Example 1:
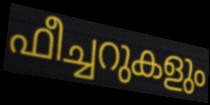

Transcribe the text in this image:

ഫീച്ചറുകളും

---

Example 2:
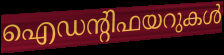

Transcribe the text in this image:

ഐഡന്റിഫയറുകൾ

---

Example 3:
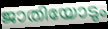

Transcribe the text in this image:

ജാതിയോടും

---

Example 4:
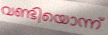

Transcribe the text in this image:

വണ്ടിയൊന്ന്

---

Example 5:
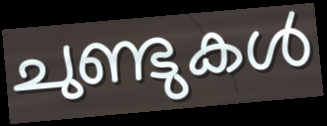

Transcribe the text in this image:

ചുണ്ടുകൾ